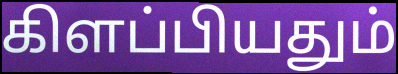
கிளப்பியதும்